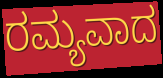
ರಮ್ಯವಾದ